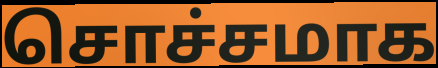
சொச்சமாக